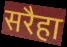
सरैहा